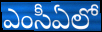
ఎంసీఏలో